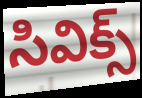
సివిక్స్